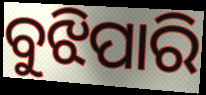
ବୁଝିପାରି